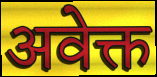
अवेक्त